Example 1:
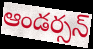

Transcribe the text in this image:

ఆండర్సన్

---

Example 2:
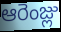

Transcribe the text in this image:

ఆరెంజ్లు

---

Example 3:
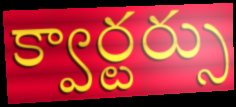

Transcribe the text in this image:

క్వార్టర్సు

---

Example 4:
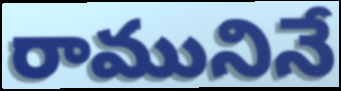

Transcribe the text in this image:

రామునినే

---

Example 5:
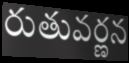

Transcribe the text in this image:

రుతువర్ణన